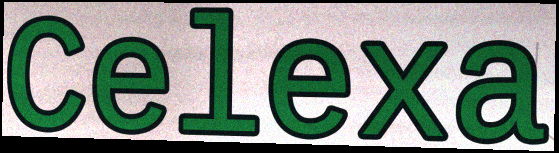
Celexa